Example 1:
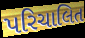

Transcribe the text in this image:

પરિચાલિત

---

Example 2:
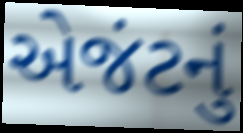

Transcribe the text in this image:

એજંટનું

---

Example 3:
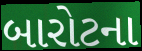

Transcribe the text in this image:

બારોટના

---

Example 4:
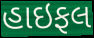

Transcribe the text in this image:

હાઇફલ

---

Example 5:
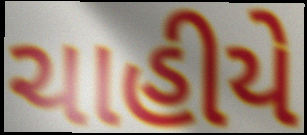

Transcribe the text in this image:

ચાહીયે